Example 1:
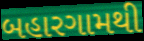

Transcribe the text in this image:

બહારગામથી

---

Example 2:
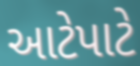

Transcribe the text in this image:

આટેપાટે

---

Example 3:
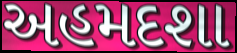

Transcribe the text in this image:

અહમદશા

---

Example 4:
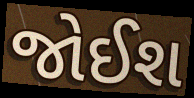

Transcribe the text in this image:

જોઈશ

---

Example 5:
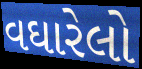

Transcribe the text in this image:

વઘારેલો